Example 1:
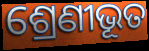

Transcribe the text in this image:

ଶ୍ରେଣୀଭୂତ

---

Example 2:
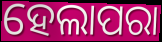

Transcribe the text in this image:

ହେଲାପରା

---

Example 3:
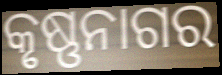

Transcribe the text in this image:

କୃଷ୍ଣନାଗର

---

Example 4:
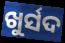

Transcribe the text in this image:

ଖୁର୍ସଦ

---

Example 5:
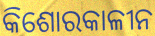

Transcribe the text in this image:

କିଶୋରକାଳୀନ